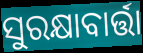
ସୁରକ୍ଷାବାର୍ତ୍ତା